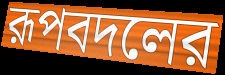
রূপবদলের